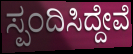
ಸ್ಪಂದಿಸಿದ್ದೇವೆ